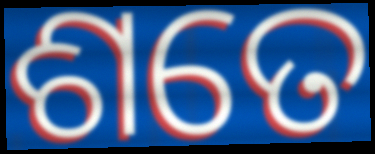
ଶତେ